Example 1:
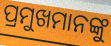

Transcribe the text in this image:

ପ୍ରମୁଖମାନଙ୍କୁ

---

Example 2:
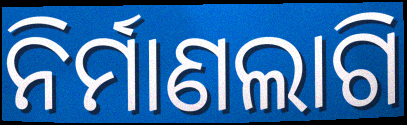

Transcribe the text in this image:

ନିର୍ମାଣଲାଗି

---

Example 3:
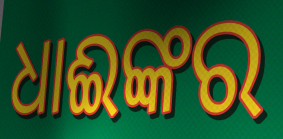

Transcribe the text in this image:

ଧାଈଙ୍କର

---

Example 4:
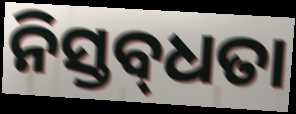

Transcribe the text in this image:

ନିସ୍ତବ୍‌ଧତା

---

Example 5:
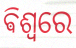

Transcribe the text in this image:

ଵିଶ୍ଵରେ